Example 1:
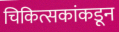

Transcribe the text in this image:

चिकित्सकांकडून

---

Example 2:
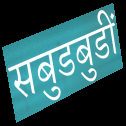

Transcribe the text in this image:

सबुडबुडीं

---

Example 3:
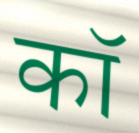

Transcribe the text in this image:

कॉ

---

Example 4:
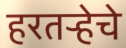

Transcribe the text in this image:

हरतऱ्हेचे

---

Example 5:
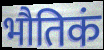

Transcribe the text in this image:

भौतिकं